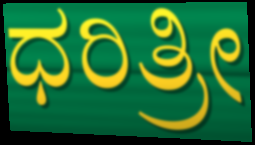
ಧರಿತ್ರೀ